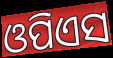
ଓପିଏସ